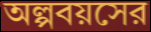
অল্পবয়সের